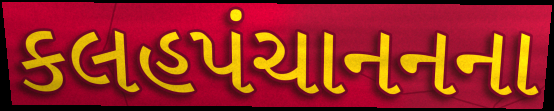
કલહપંચાનનના